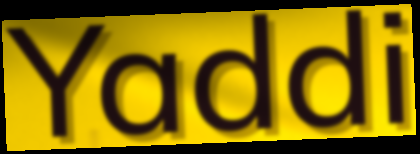
Yaddi